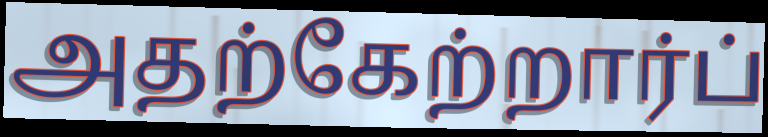
அதற்கேற்றார்ப்